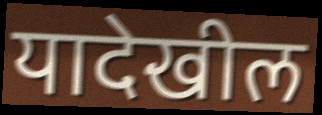
यादेखील